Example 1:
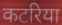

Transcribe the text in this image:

कटरिया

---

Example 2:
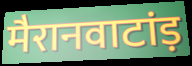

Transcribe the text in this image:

मैरानवाटांड़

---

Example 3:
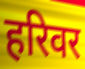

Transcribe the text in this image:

हरिवर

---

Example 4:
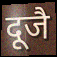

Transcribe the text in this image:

दूजै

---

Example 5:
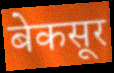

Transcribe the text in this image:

बेकसूर